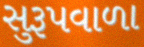
સુરૂપવાળા